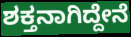
ಶಕ್ತನಾಗಿದ್ದೇನೆ